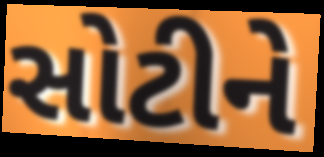
સોટીને